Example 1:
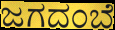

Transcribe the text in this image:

ಜಗದಂಬೆ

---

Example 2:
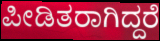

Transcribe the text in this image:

ಪೀಡಿತರಾಗಿದ್ದರೆ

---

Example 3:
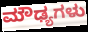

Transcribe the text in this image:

ಮೌಢ್ಯಗಳು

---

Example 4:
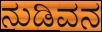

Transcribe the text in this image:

ನುಡಿವನ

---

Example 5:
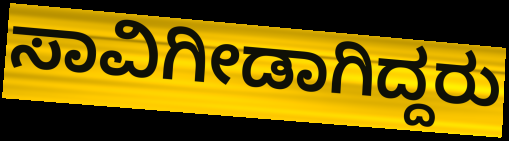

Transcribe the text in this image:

ಸಾವಿಗೀಡಾಗಿದ್ದರು